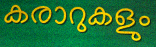
കരാറുകളും